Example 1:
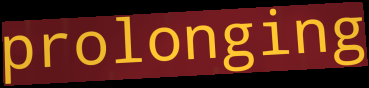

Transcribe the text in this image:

prolonging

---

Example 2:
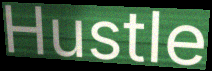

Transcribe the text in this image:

Hustle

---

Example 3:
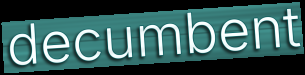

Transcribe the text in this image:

decumbent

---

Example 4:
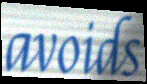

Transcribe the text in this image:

avoids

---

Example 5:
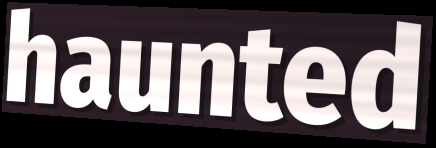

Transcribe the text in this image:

haunted